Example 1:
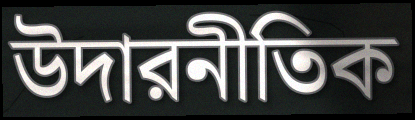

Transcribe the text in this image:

উদারনীতিক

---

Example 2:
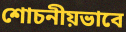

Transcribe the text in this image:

শোচনীয়ভাবে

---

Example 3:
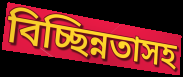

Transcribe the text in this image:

বিচ্ছিন্নতাসহ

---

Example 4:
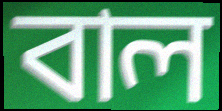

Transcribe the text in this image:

বাল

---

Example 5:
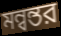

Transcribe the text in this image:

মন্বন্তর